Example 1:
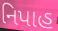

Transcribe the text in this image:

નિપાહ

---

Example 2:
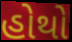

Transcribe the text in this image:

હોથો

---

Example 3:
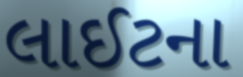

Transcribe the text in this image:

લાઈટના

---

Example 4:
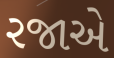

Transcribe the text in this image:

રજાએ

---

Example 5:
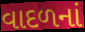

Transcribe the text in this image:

વાદળનાં